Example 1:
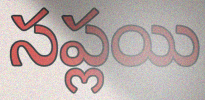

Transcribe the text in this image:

సప్లయి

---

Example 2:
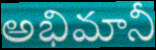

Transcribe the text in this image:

అభిమానీ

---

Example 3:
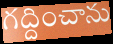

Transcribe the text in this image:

గద్దించాను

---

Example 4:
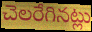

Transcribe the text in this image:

చెలరేగినట్లు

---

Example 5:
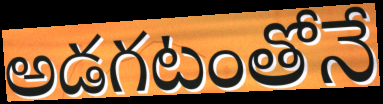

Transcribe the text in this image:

అడగటంతోనే